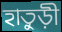
হাতুড়ী